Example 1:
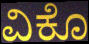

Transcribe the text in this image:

ವಿಕೊ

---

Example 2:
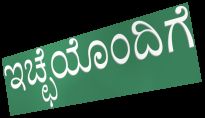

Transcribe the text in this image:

ಇಚ್ಛೆಯೊಂದಿಗೆ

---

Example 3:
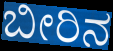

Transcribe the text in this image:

ಬೀರಿನ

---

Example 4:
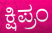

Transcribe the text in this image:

ಕ್ಷಿಪ್ರಂ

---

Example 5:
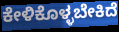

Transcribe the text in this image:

ಕೇಳಿಕೊಳ್ಳಬೇಕಿದೆ